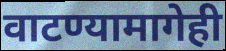
वाटण्यामागेही